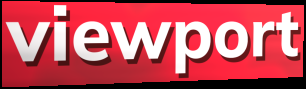
viewport